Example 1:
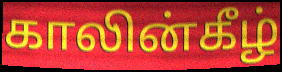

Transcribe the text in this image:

காலின்கீழ்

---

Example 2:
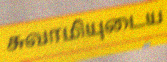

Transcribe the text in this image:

சுவாமியுடைய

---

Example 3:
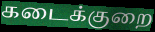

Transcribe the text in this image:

கடைக்குறை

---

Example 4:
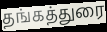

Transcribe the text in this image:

தங்கத்துரை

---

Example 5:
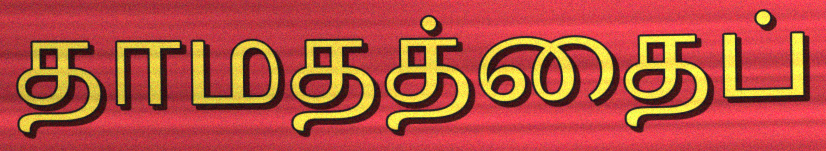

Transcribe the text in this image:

தாமதத்தைப்